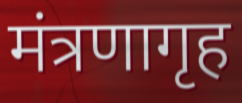
मंत्रणागृह